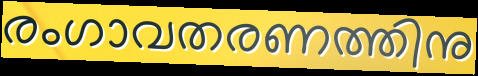
രംഗാവതരണത്തിനു